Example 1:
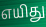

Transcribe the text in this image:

எயிது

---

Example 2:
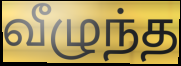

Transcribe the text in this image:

வீழுந்த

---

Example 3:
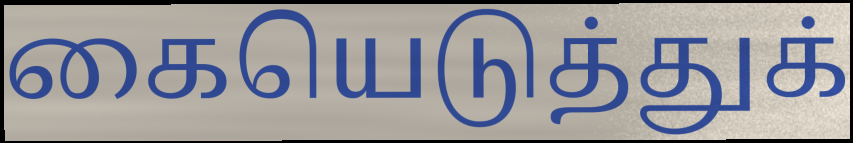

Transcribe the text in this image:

கையெடுத்துக்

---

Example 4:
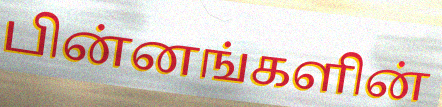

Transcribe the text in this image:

பின்னங்களின்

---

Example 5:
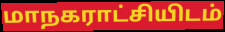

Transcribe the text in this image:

மாநகராட்சியிடம்